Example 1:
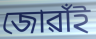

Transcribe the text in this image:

জোৱাঁই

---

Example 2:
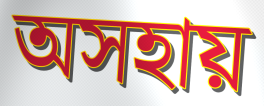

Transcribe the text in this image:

অসহায়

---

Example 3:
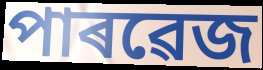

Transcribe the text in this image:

পাৰৱেজ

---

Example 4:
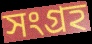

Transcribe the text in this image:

সংগ্ৰহ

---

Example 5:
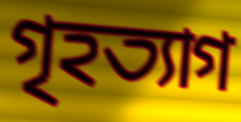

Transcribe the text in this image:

গৃহত্যাগ